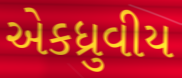
એકધ્રુવીય